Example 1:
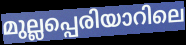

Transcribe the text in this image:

മുല്ലപ്പെരിയാറിലെ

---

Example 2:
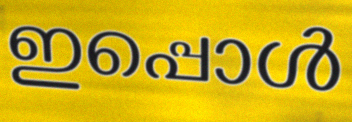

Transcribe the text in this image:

ഇപ്പൊൾ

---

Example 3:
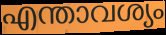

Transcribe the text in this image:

എന്താവശ്യം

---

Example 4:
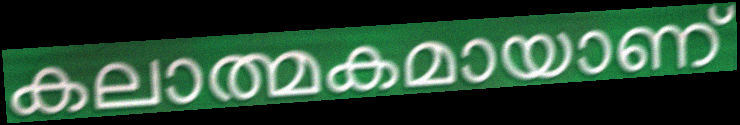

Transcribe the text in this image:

കലാത്മകമായാണ്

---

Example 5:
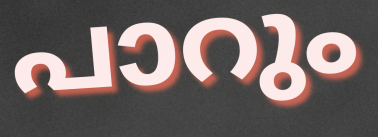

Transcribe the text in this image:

പാറും